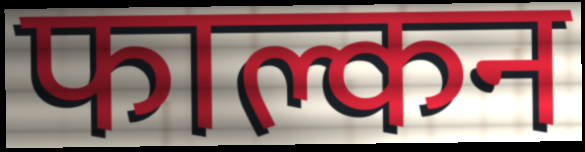
फाल्कन